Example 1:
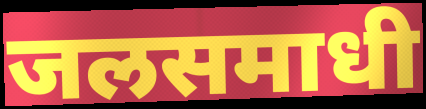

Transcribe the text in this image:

जलसमाधी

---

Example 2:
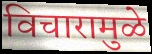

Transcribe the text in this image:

विचारामुळे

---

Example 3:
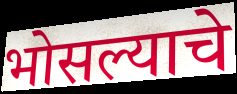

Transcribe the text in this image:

भोसल्याचे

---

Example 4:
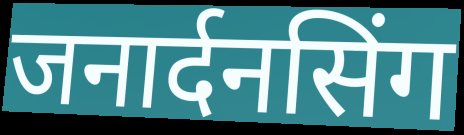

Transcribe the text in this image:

जनार्दनसिंग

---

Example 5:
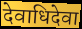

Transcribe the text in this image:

देवाधिदेवा